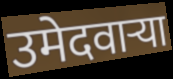
उमेदवार्‍या